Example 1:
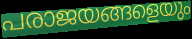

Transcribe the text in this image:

പരാജയങ്ങളെയും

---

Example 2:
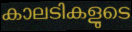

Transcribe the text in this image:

കാലടികളുടെ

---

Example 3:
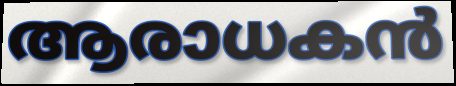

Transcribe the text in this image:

ആരാധകൻ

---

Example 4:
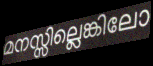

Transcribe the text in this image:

മനസ്സില്ലെങ്കിലോ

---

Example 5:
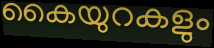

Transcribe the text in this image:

കൈയുറകളും